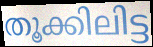
തൂക്കിലിട്ട